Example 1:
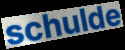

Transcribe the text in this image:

schulde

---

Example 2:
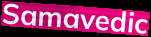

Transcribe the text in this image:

Samavedic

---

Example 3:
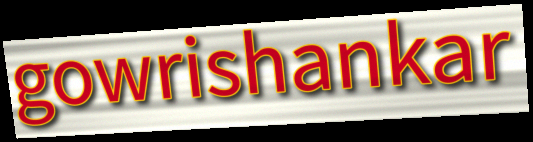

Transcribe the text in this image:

gowrishankar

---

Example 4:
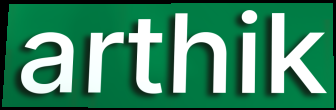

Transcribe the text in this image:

arthik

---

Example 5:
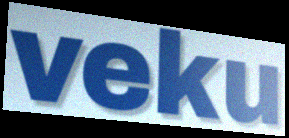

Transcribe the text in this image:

veku